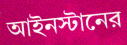
আইনস্টানের